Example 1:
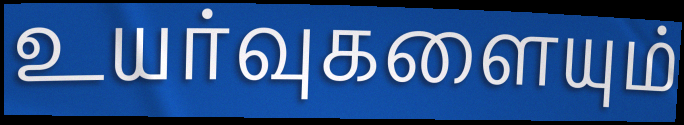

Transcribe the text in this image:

உயர்வுகளையும்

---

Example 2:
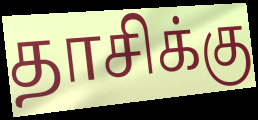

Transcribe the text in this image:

தாசிக்கு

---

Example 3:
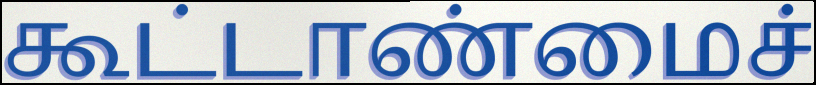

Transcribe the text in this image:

கூட்டாண்மைச்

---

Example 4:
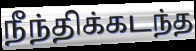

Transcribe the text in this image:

நீந்திக்கடந்த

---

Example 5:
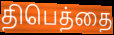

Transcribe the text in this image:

திபெத்தை